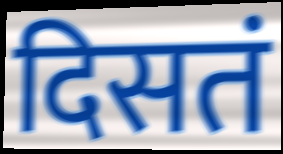
दिसतं